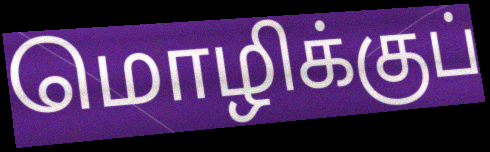
மொழிக்குப்